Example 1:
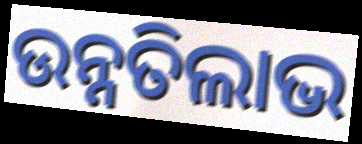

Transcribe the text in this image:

ଉନ୍ନତିଲାଭ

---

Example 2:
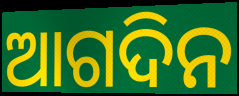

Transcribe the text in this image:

ଆଗଦିନ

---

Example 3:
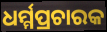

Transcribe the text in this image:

ଧର୍ମ୍ମପ୍ରଚାରକ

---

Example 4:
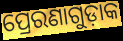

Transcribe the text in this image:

ପ୍ରେରଣାଗୁଡ଼ାକ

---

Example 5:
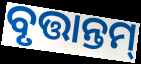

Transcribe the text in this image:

ବୃତ୍ତାନ୍ତମ୍